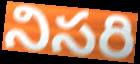
నిసరి